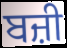
ਬਜ਼ੀ